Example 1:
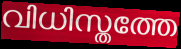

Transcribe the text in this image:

വിധിസ്തത്തേ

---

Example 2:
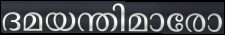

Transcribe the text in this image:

ദമയന്തിമാരോ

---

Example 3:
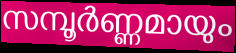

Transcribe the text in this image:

സമ്പൂർണ്ണമായും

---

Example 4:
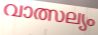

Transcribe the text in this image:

വാത്സല്യം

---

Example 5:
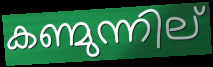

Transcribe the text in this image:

കണ്മുന്നില്